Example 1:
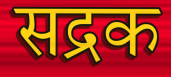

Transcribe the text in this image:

सद्रक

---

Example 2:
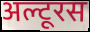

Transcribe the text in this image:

अल्टूरस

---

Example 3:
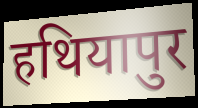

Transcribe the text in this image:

हथियापुर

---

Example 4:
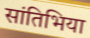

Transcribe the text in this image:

सांतिभिया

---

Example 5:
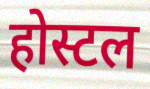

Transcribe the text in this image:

होस्टल